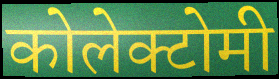
कोलेक्टोमी